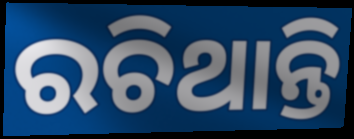
ରଚିଥାନ୍ତି